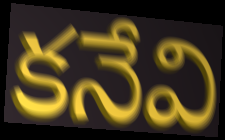
కనేవి